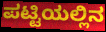
ಪಟ್ಟಿಯಲ್ಲಿನ